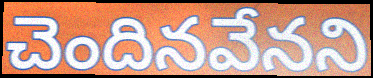
చెందినవేనని